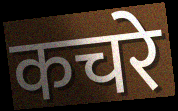
कचरे